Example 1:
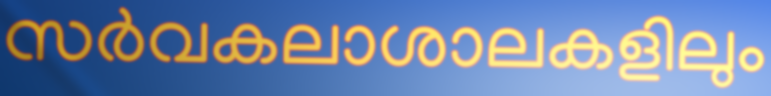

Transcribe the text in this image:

സർവകലാശാലകളിലും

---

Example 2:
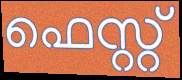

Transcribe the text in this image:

ഫെസ്റ്റ്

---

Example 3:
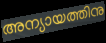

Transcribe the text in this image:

അന്യായത്തിനു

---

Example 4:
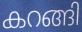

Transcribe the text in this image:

കറങ്ങി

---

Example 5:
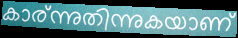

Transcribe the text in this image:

കാര്ന്നുതിന്നുകയാണ്